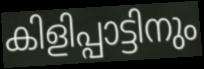
കിളിപ്പാട്ടിനും